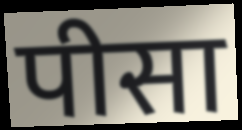
पीसा